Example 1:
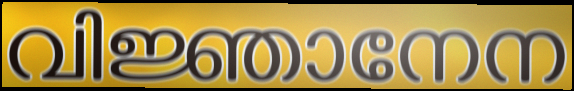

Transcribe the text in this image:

വിജ്ഞാനേന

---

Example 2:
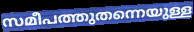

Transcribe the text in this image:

സമീപത്തുതന്നെയുള്ള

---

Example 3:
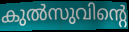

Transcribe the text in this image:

കുൽസുവിന്റെ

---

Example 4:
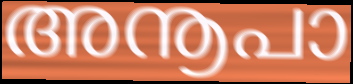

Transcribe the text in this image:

അനൂപാ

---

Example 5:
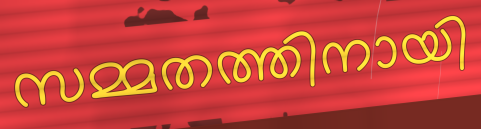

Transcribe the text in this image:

സമ്മതത്തിനായി